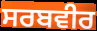
ਸਰਬਵੀਰ